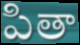
పితా